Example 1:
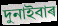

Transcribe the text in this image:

দুনাইবাৰ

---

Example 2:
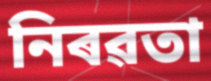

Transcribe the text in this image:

নিৰৱতা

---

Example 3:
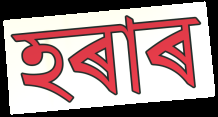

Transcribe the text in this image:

হৰাৰ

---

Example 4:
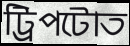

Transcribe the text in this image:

ট্ৰিপটোত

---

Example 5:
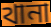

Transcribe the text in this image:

থানা